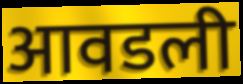
आवडली